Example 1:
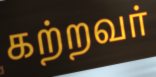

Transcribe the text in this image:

கற்றவர்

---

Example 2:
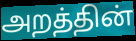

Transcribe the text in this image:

அறத்தின்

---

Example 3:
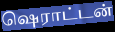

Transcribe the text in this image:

ஷெராட்டன்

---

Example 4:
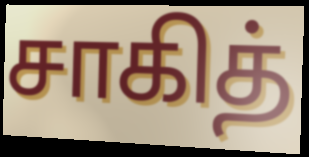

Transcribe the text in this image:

சாகித்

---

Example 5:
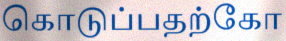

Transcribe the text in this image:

கொடுப்பதற்கோ